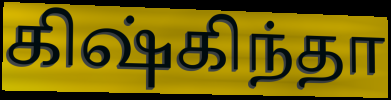
கிஷ்கிந்தா